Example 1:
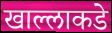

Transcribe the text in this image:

खाल्लाकडे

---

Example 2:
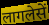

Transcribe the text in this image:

लागलेसें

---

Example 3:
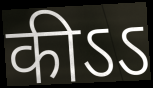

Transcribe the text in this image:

कीऽऽ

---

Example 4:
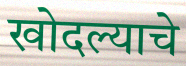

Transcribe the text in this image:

खोदल्याचे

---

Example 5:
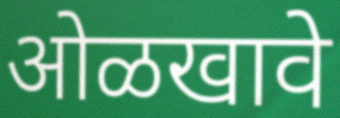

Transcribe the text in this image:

ओळखावे